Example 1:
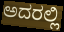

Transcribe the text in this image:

ಅದರಲ್ಲಿ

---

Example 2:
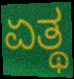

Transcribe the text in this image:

ಏತ್ಥ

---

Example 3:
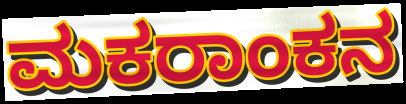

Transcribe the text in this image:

ಮಕರಾಂಕನ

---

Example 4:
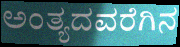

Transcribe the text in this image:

ಅಂತ್ಯದವರೆಗಿನ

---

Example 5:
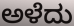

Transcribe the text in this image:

ಅಳೆದು